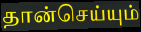
தான்செய்யும்